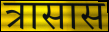
त्रासास